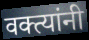
वक्त्यांनी